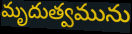
మృదుత్వమును